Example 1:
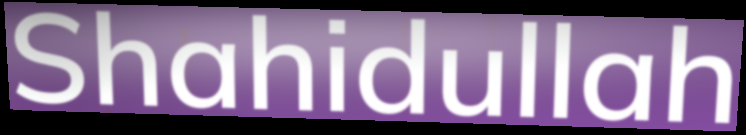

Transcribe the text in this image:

Shahidullah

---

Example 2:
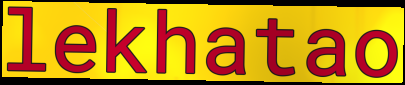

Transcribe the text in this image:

lekhatao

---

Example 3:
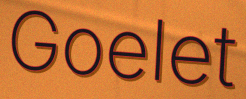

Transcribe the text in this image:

Goelet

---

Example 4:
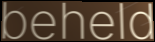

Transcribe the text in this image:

beheld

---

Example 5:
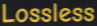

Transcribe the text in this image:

Lossless